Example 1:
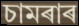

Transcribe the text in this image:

চামৰাৰ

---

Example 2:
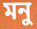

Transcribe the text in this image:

মনু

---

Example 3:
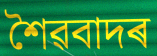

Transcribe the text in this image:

শৈৱবাদৰ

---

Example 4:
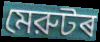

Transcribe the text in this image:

মেৰুটৰ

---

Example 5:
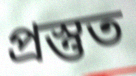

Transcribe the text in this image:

প্ৰস্তুত